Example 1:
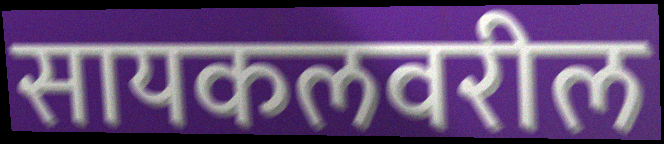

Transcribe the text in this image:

सायकलवरील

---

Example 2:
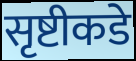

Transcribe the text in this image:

सृष्टीकडे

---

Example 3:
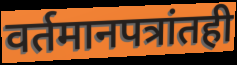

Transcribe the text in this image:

वर्तमानपत्रांतही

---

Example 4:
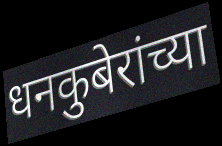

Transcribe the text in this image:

धनकुबेरांच्या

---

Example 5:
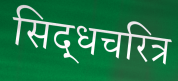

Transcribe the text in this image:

सिद्धचरित्र